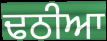
ਢਠੀਆ